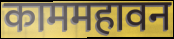
काममहावन